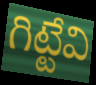
గిట్టేవి